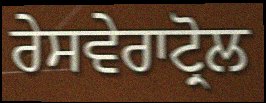
ਰੇਸਵੇਰਾਟ੍ਰੋਲ